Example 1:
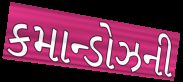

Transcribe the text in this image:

કમાન્ડોઝની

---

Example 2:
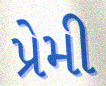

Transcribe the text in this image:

પ્રેમી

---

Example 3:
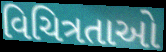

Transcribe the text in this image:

વિચિત્રતાઓ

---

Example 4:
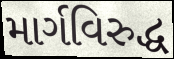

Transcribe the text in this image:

માર્ગવિરુદ્ધ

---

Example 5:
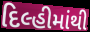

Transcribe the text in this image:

દિલ્હીમાંથી